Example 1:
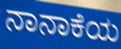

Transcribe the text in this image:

ನಾನಾಕೆಯ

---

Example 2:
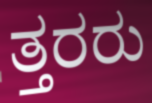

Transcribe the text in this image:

ತ್ತರರು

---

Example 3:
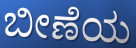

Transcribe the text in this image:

ಬೀಣೆಯ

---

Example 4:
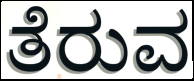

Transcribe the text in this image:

ತೆರುವ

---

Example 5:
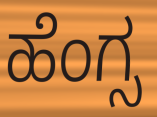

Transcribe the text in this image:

ಹೆಂಗ್ಸ